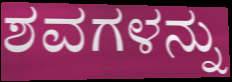
ಶವಗಳನ್ನು